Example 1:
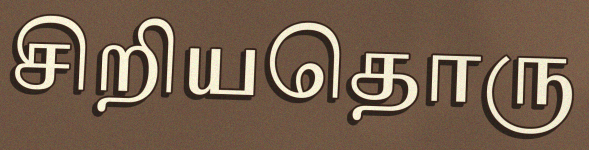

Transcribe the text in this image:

சிறியதொரு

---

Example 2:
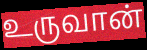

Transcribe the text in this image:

உருவான்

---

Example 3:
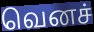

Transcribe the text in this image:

வெனச்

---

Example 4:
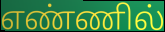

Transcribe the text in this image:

எண்ணில்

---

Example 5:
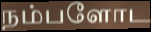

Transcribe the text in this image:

நம்பளோட